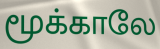
மூக்காலே